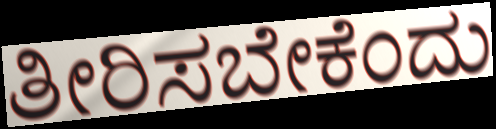
ತೀರಿಸಬೇಕೆಂದು